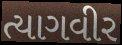
ત્યાગવીર